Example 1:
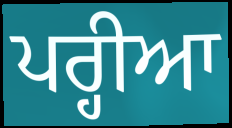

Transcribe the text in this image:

ਪਰ੍ਹੀਆ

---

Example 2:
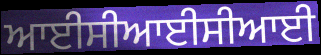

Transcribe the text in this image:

ਆਈਸੀਆਈਸੀਆਈ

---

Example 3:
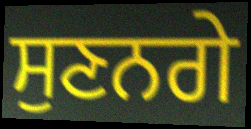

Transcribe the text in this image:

ਸੁਣਨਗੇ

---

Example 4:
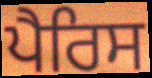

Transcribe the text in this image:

ਪੈਰਿਸ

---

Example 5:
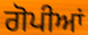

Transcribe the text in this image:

ਗੋਪੀਆਂ